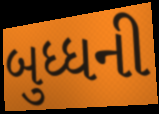
બુધ્ધની